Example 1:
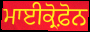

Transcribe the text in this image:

ਮਾਈਕ੍ਰੋਫ਼ੋਨ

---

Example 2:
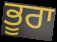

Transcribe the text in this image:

ਭੂਰਾ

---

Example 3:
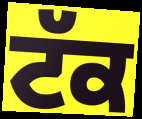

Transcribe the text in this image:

ਟੱਕ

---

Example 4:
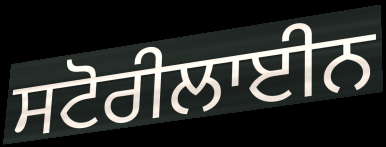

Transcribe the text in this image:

ਸਟੋਰੀਲਾਈਨ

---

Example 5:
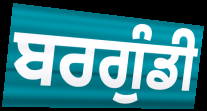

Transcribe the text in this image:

ਬਰਗੁੰਡੀ